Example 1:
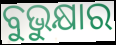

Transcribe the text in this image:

ବୁଭୁକ୍ଷାର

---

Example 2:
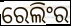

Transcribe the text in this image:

ରେଲିଂର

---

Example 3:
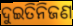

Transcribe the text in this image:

ଦୁଇତିନିଜଣ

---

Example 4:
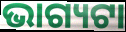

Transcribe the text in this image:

ଭାଗ୍ୟଟା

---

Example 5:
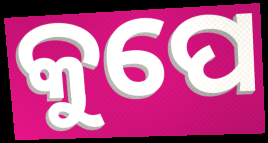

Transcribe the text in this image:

କୁପେ